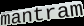
mantram